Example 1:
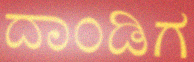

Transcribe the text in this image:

ದಾಂಡಿಗ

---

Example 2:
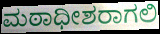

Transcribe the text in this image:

ಮಠಾಧೀಶರಾಗಲಿ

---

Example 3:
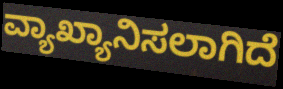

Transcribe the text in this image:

ವ್ಯಾಖ್ಯಾನಿಸಲಾಗಿದೆ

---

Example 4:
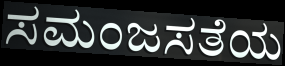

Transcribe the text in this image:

ಸಮಂಜಸತೆಯ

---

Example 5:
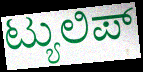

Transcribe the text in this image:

ಟ್ಯುಲಿಪ್